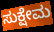
ಸುಕ್ಷೇಮ